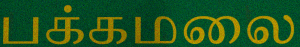
பக்கமலை